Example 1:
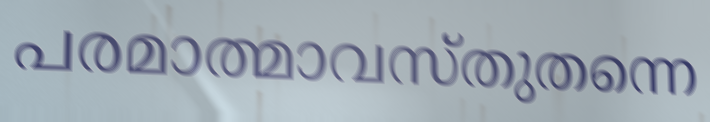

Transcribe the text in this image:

പരമാത്മാവസ്തുതന്നെ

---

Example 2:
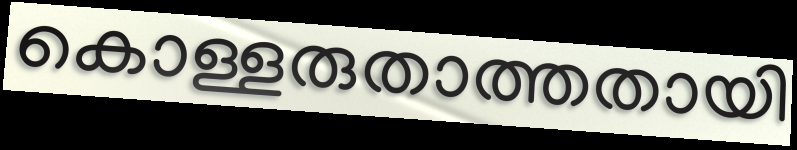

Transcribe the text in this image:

കൊള്ളരുതാത്തതായി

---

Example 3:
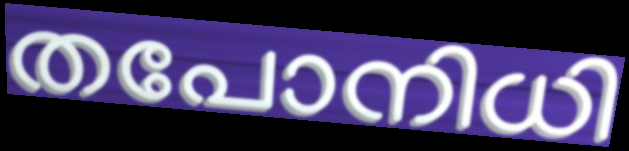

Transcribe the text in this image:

തപോനിധി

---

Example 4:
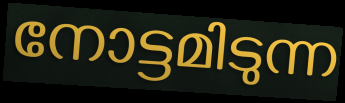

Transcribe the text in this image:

നോട്ടമിടുന്ന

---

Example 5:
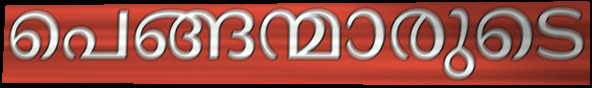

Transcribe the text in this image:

പെങ്ങന്മാരുടെ